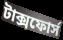
টাক্সফোর্স